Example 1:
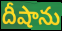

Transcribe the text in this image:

దీషాను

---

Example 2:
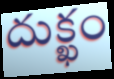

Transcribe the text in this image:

దుక్ఖం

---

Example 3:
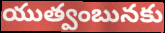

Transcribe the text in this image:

యుత్వంబునకు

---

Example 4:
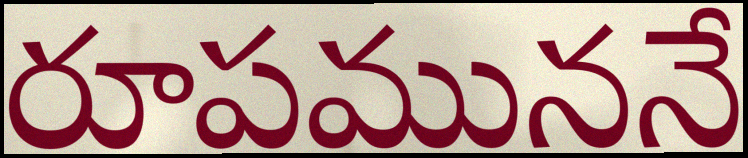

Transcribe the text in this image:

రూపముననే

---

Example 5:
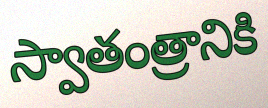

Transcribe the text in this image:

స్వాతంత్రానికి